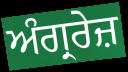
ਅੰਗ੍ਰਰੇਜ਼